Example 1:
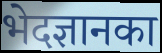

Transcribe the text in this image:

भेदज्ञानका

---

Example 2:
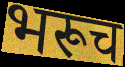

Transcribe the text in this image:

भरूच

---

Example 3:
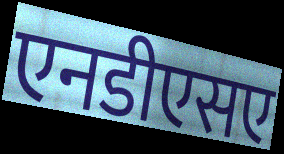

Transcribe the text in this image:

एनडीएसए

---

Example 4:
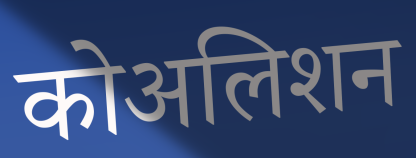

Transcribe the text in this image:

कोअलिशन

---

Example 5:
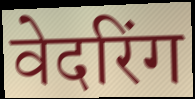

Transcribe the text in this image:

वेदरिंग